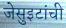
जेसुइटांची